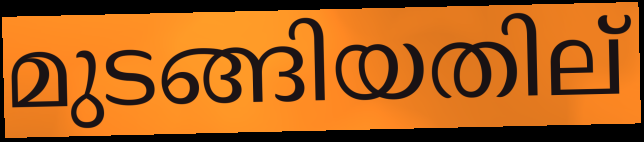
മുടങ്ങിയതില്